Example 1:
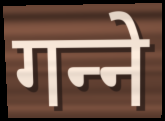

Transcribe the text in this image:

गन्‍ने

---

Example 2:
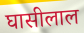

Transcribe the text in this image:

घासीलाल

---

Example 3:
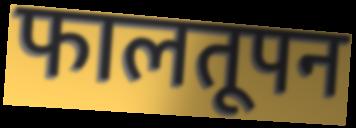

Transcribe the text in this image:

फालतूपन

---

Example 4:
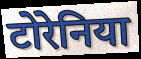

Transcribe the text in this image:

टोरेनिया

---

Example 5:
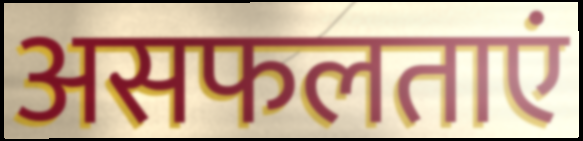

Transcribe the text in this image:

असफलताएं